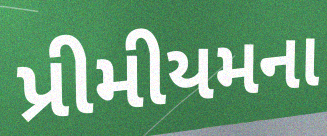
પ્રીમીયમના